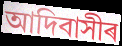
আদিবাসীৰ